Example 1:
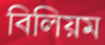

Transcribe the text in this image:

বিলিয়ম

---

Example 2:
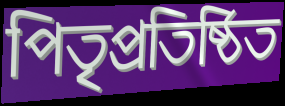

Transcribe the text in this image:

পিতৃপ্রতিষ্ঠিত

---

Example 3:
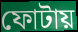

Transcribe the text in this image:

ফোটায়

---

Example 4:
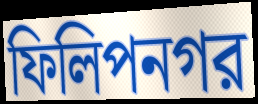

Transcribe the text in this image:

ফিলিপনগর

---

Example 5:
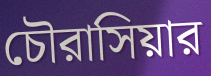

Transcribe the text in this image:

চৌরাসিয়ার